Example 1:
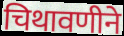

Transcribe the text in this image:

चिथावणीने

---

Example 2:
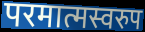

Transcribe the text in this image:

परमात्मस्वरुप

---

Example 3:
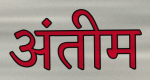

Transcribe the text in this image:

अंतीम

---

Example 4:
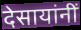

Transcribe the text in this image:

देसायांनीं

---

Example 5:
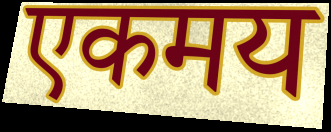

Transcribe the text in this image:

एकमय